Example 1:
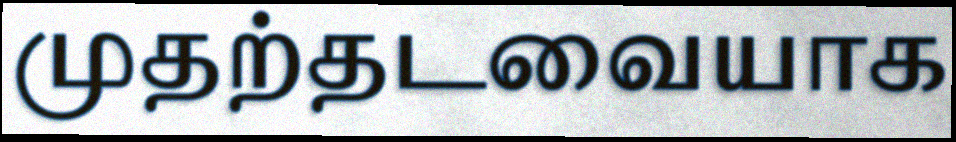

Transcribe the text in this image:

முதற்தடவையாக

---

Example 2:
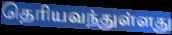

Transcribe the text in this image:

தெரியவந்துள்ளது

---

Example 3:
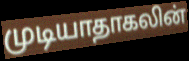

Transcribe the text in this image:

முடியாதாகலின்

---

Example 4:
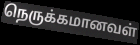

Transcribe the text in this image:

நெருக்கமானவள்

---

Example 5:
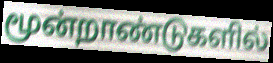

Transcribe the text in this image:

மூன்றாண்டுகளில்